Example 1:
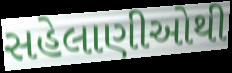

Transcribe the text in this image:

સહેલાણીઓથી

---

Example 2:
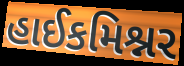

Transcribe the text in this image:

હાઈકમિશ્નર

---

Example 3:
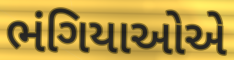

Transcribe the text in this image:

ભંગિયાઓએ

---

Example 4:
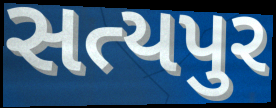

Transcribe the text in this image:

સત્યપુર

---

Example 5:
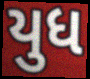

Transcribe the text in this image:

યુધ